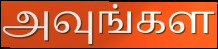
அவுங்கள